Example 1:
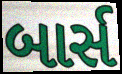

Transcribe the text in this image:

બાર્સ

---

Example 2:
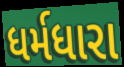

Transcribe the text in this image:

ધર્મધારા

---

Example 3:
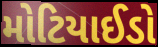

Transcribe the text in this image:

મોટિયાઈડો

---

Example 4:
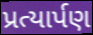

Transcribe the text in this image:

પ્રત્યાર્પણ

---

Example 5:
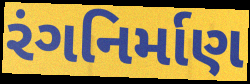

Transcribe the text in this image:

રંગનિર્માણ